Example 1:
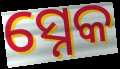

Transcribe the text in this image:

ସ୍ନେକ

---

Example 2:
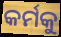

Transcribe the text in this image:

କର୍ମକୁ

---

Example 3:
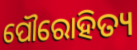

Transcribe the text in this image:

ପୌରୋହିତ୍ୟ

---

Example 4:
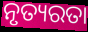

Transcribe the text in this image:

ନୃତ୍ୟରତା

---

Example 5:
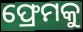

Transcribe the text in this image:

ଫ୍ରେମକୁ